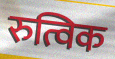
रुत्विक